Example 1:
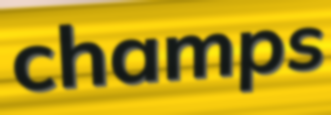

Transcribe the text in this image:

champs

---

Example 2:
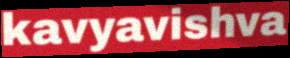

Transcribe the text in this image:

kavyavishva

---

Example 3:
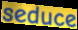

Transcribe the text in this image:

seduce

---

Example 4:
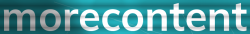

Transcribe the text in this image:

morecontent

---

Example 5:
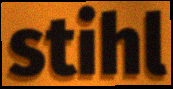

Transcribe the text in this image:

stihl